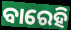
ବାରେହି